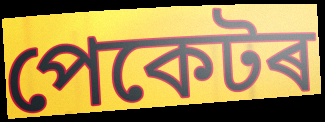
পেকেটৰ